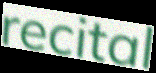
recital